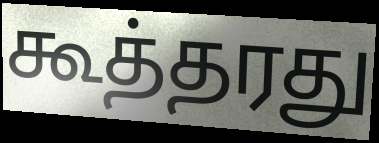
கூத்தரது